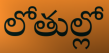
లోతుల్లో